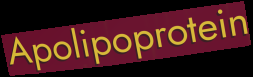
Apolipoprotein